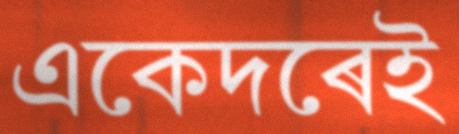
একেদৰেই